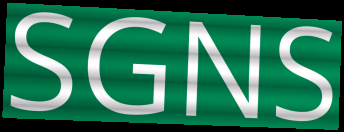
SGNS